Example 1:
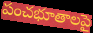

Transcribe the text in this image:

పంచభూతాలపై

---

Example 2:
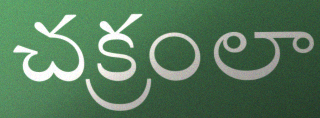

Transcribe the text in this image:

చక్రంలా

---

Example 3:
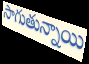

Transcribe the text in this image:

సాగుతున్నాయి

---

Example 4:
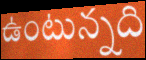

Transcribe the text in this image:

ఉంటున్నది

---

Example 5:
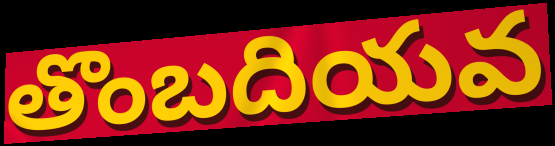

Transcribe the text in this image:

తొంబదియవ